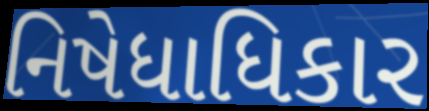
નિષેધાધિકાર